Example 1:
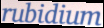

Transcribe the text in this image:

rubidium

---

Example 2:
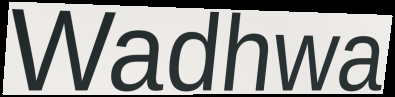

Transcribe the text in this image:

Wadhwa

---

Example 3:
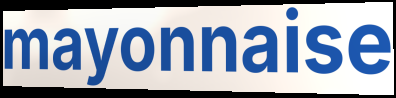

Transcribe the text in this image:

mayonnaise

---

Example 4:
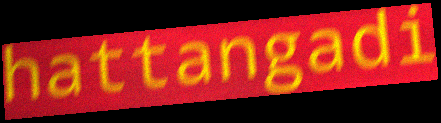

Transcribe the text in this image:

hattangadi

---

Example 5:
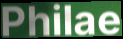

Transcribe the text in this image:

Philae